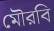
মৌরবি